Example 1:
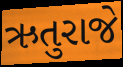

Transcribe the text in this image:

ઋતુરાજે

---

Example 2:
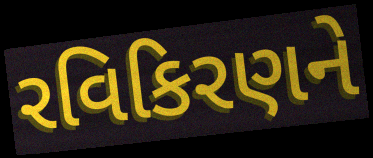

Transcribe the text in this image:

રવિકિરણને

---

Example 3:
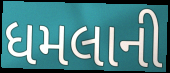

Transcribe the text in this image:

ધમલાની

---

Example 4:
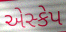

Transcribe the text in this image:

એસ્કેપ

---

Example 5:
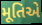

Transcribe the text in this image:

મૂતિએ